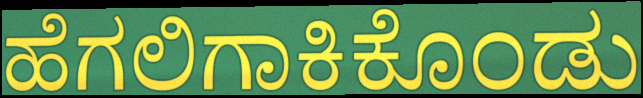
ಹೆಗಲಿಗಾಕಿಕೊಂಡು